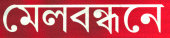
মেলবন্ধনে